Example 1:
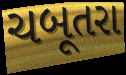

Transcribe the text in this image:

ચબૂતરા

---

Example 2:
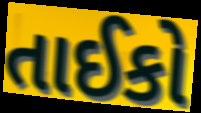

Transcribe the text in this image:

તાઈકો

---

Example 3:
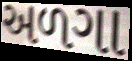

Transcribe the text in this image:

અળગા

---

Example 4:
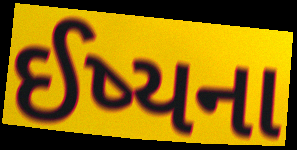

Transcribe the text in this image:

ઈષ્યના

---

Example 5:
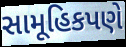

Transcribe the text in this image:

સામૂહિકપણે